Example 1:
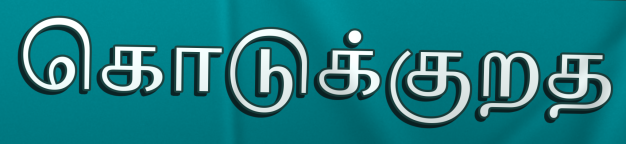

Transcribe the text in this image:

கொடுக்குறத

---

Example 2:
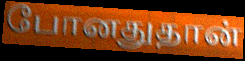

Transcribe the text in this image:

போனதுதான்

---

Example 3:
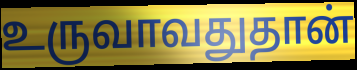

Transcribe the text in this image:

உருவாவதுதான்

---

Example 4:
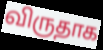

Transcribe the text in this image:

விருதாக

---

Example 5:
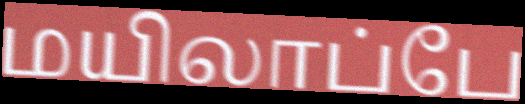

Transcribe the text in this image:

மயிலாப்பே